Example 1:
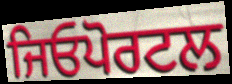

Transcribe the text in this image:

ਜਿਓਪੋਰਟਲ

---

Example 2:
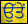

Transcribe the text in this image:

ਉੱਤੇਂ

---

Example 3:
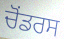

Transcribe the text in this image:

ਚੋਂਡਰਸ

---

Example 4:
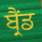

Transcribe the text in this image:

ਬ੍ਰੈਂਡ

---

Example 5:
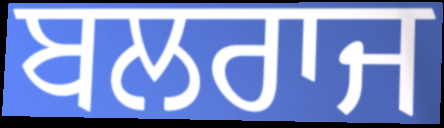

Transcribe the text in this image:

ਬਲਰਾਜ